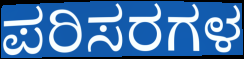
ಪರಿಸರಗಳ